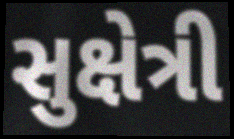
સુક્ષેત્રી